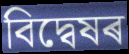
বিদ্বেষৰ